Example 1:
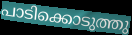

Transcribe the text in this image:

പാടിക്കൊടുത്തു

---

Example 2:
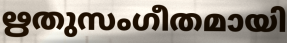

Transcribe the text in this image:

ഋതുസംഗീതമായി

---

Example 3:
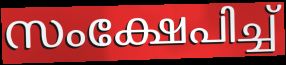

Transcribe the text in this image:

സംക്ഷേപിച്ച്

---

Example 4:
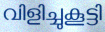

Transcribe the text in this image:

വിളിച്ചുകൂട്ടി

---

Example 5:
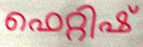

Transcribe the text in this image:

ഫെറ്റിഷ്